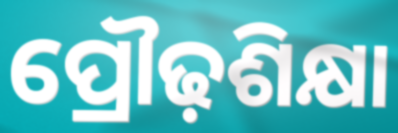
ପ୍ରୌଢ଼ଶିକ୍ଷା